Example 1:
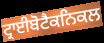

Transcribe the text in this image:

ਟ੍ਰਾਈਬੋਟੈਕਨਿਕਲ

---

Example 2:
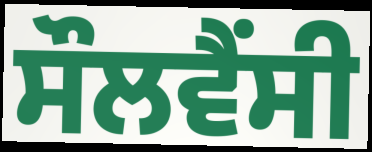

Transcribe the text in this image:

ਸੌਲਵੈਂਸੀ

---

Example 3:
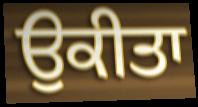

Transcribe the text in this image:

ਉਕੀਤਾ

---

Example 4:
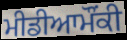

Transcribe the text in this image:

ਮੀਡੀਆਮੌਂਕੀ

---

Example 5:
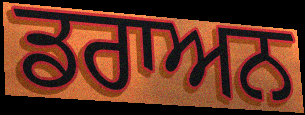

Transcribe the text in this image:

ਡਰਾਅਨ